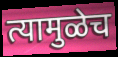
त्यामुळेच